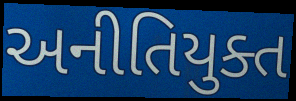
અનીતિયુક્ત